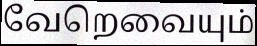
வேறெவையும்